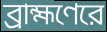
ব্রাহ্মণেরে